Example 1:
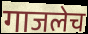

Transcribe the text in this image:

गाजलेच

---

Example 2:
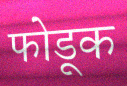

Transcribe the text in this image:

फोडूक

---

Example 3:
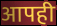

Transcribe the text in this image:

आपही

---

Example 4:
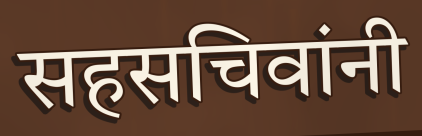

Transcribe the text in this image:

सहसचिवांनी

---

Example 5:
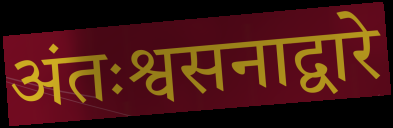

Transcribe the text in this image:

अंतःश्वसनाद्वारे